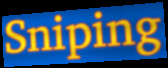
Sniping